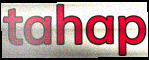
tahap